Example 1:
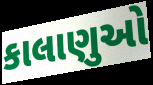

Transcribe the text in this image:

કાલાણુઓ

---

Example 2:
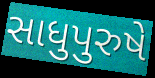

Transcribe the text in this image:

સાધુપુરુષે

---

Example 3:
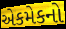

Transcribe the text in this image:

એકમેકનો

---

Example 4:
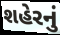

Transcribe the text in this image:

શહેરનું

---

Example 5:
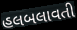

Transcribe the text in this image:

હલબલાવતી